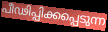
പീഢിപ്പിക്കപ്പെടുന്ന